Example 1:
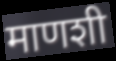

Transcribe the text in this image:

माणशी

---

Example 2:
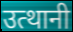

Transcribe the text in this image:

उत्थानी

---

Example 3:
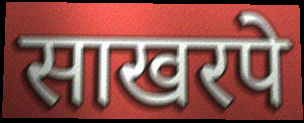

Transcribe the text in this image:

साखरपे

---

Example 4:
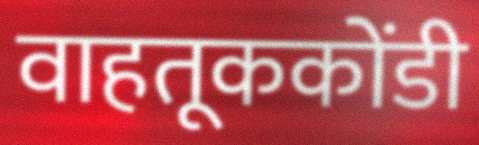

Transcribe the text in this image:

वाहतूककोंडी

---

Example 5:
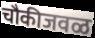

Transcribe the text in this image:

चौकीजवळ